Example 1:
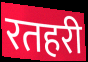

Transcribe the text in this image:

रतहरी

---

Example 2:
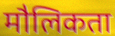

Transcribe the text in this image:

मौलिकता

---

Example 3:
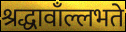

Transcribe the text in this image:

श्रद्धावाँल्लभते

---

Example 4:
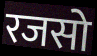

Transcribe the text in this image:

रजसो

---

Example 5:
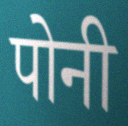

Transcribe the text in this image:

पोनी